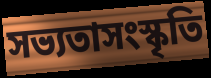
সভ্যতাসংস্কৃতি